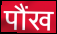
पौंख